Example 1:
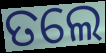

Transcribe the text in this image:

ତଲେ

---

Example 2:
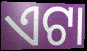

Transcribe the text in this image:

ଏଟା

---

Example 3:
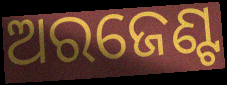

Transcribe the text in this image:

ଅରଜେଣ୍ଟ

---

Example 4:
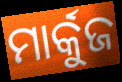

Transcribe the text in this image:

ମାର୍କୁଜ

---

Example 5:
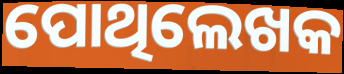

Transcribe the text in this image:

ପୋଥିଲେଖକ